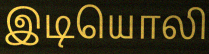
இடியொலி